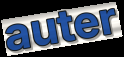
auter